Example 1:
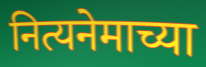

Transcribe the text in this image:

नित्यनेमाच्या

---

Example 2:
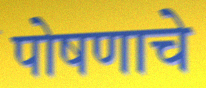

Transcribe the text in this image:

पोषणाचे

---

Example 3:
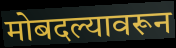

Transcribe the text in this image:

मोबदल्यावरून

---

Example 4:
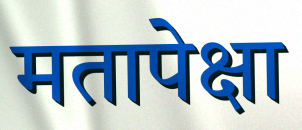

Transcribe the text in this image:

मतापेक्षा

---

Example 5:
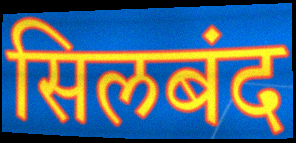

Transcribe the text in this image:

सिलबंद